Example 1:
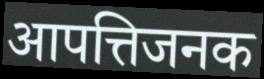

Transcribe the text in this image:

आपत्तिजनक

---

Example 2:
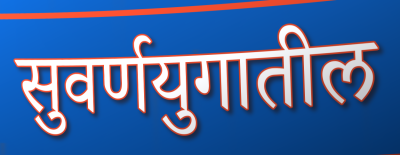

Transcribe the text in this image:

सुवर्णयुगातील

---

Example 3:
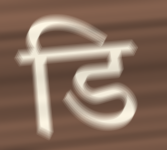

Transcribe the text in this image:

डि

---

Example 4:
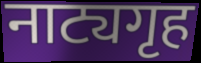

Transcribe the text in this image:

नाट्यगृह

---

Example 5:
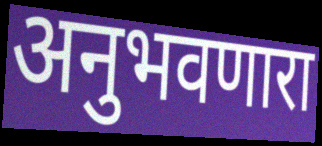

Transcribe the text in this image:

अनुभवणारा